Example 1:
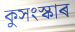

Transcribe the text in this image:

কুসংস্কাৰ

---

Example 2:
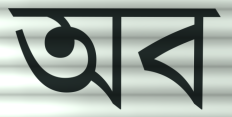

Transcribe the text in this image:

অব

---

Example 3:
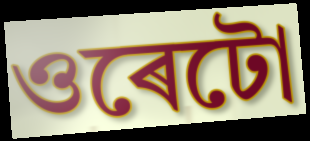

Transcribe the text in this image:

ওৰেটো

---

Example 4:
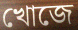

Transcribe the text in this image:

খোজে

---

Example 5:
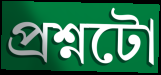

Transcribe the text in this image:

প্ৰশ্নটো